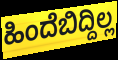
ಹಿಂದೆಬಿದ್ದಿಲ್ಲ